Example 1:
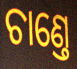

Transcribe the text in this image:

ଚାଣ୍ତେ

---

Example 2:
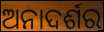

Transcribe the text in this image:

ଅନାଦର୍ଶର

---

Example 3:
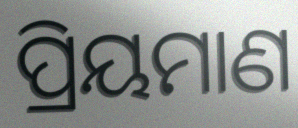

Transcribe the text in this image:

ପ୍ରିୟମାଣ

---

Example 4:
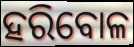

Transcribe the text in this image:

ହରିବୋଳ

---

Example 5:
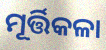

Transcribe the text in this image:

ମୂର୍ତ୍ତିକଳା